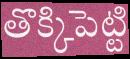
తొక్కిపెట్టి